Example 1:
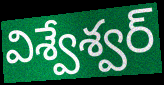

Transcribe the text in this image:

విశ్వేశ్వర్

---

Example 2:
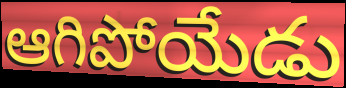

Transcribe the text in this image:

ఆగిపోయేడు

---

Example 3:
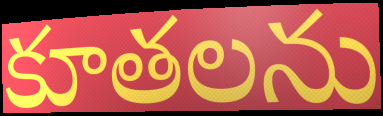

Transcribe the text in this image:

కూతలను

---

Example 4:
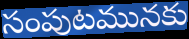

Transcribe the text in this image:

సంపుటమునకు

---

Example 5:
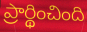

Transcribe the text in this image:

ప్రార్థించింది